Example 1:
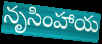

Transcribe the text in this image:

నృసింహాయ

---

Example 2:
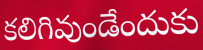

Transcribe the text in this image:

కలిగివుండేందుకు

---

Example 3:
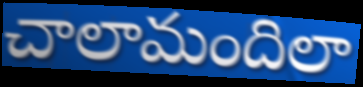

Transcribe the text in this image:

చాలామందిలా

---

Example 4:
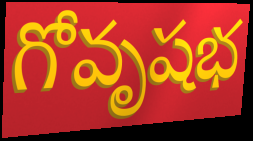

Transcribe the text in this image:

గోవృషభ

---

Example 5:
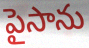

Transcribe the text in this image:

పైసాను